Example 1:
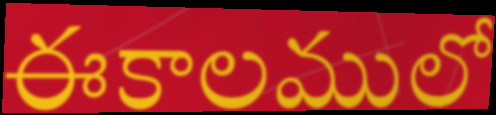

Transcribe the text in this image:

ఈకాలములో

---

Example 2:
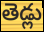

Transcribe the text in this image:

తెడ్లు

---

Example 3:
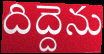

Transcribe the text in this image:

దిద్దెను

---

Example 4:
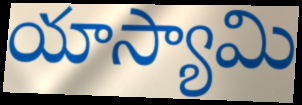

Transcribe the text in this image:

యాస్యామి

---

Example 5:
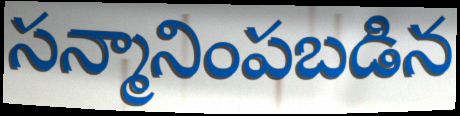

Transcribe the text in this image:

సన్మానింపబడిన